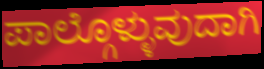
ಪಾಲ್ಗೊಳ್ಳುವುದಾಗಿ